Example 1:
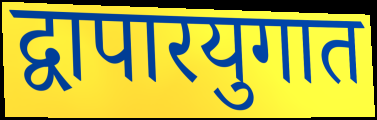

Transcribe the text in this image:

द्वापारयुगात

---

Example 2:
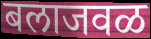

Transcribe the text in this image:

बलाजवळ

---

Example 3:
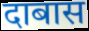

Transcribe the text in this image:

दाबास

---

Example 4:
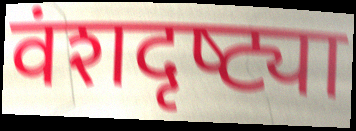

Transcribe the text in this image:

वंशदृष्ट्या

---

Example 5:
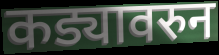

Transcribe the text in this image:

कड्यावरुन